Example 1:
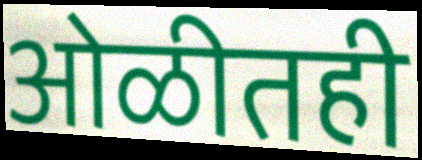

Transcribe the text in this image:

ओळीतही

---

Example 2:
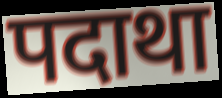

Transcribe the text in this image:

पदाथा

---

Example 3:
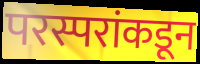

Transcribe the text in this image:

परस्परांकडून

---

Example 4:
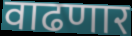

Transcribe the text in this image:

वाढणार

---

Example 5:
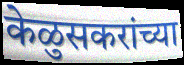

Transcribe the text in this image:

केळुसकरांच्या